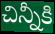
చిన్నీకి